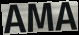
AMA